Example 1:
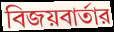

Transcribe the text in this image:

বিজয়বার্তার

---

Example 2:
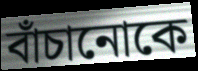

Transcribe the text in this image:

বাঁচানোকে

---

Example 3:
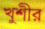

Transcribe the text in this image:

খুশীর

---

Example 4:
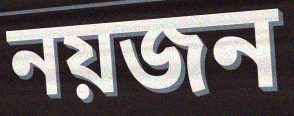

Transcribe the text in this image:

নয়জন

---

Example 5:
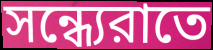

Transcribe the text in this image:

সন্ধ্যেরাতে